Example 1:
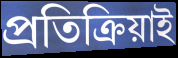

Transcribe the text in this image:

প্রতিক্রিয়াই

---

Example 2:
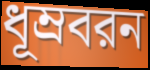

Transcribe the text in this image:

ধূম্রবরন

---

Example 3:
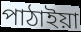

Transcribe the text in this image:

পাঠাইয়া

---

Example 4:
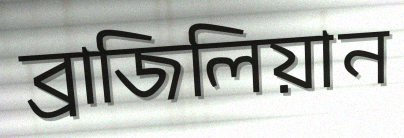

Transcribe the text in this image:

ব্রাজিলিয়ান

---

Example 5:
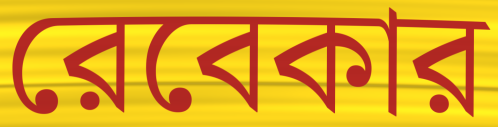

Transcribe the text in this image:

রেবেকার